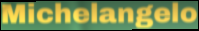
Michelangelo